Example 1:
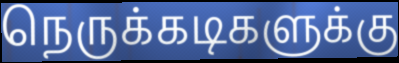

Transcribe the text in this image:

நெருக்கடிகளுக்கு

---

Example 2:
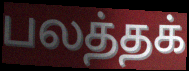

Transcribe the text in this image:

பலத்தக்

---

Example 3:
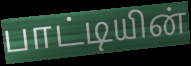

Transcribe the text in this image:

பாட்டியின்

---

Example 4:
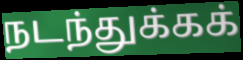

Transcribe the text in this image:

நடந்துக்கக்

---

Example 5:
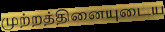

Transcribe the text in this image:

முற்றத்தினையுடைய